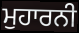
ਮੁਹਾਰਨੀ